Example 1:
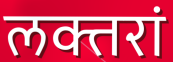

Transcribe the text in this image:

लक्तरां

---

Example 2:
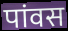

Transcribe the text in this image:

पांवस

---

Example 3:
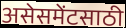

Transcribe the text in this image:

असेसमेंटसाठी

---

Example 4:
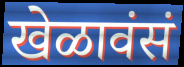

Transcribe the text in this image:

खेळावंसं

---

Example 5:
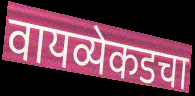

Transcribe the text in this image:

वायव्येकडचा